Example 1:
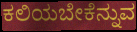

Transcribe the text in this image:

ಕಲಿಯಬೇಕೆನ್ನುವ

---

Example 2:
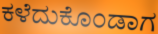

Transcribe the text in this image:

ಕಳೆದುಕೊಂಡಾಗ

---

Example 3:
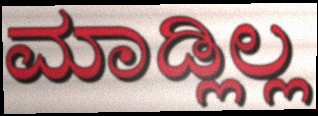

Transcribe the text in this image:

ಮಾಡ್ಲಿಲ್ಲ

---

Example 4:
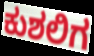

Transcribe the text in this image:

ಕುಶಲಿಗ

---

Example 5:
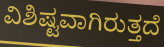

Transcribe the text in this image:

ವಿಶಿಷ್ಟವಾಗಿರುತ್ತದೆ